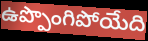
ఉప్పొంగిపోయేది